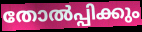
തോൽപ്പിക്കും